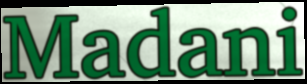
Madani